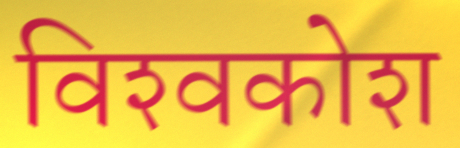
विश्वकोश